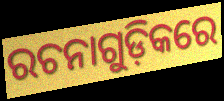
ରଚନାଗୁଡ଼ିକରେ